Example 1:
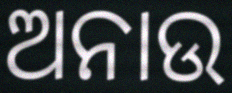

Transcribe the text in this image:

ଅନାଉ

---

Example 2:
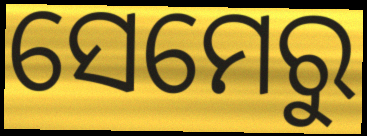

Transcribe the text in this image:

ସେମେରୁ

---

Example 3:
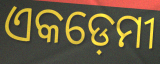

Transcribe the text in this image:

ଏକଡ଼େମୀ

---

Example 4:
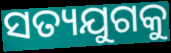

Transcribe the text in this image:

ସତ୍ୟଯୁଗକୁ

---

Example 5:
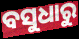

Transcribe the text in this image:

ବସୁଧାରୁ